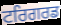
ਟਰਿਗਰਡ